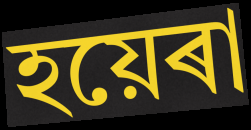
হয়েৰা